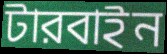
টারবাইন